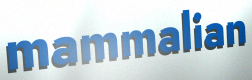
mammalian